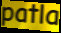
patla